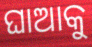
ଘାଆକୁ